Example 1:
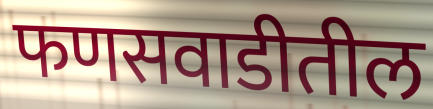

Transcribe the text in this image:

फणसवाडीतील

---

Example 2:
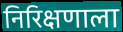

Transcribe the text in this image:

निरिक्षणाला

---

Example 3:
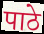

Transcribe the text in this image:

पाठे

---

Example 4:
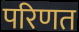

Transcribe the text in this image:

परिणत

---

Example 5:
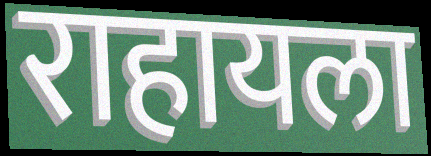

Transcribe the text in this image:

राहायला